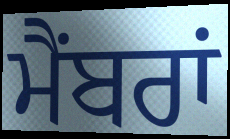
ਮੈਂਬਰਾਂ